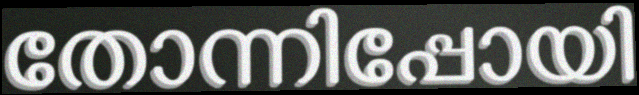
തോന്നിപ്പോയി